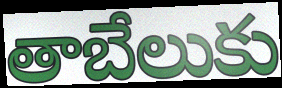
తాబేలుకు